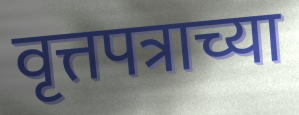
वृत्तपत्राच्या